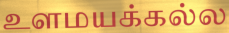
உளமயக்கல்ல